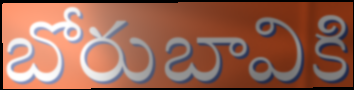
బోరుబావికి